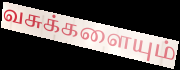
வசுக்களையும்